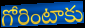
గోరింటాకు